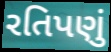
રતિપણું